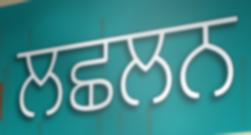
ਲਛਲਨ